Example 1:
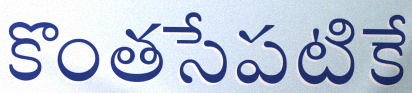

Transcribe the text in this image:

కొంతసేపటికే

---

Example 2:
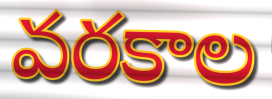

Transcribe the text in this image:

వరకాల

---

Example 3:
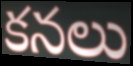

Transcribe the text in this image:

కనలు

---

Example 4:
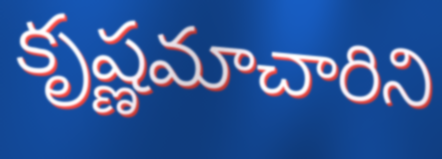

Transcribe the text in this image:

కృష్ణమాచారిని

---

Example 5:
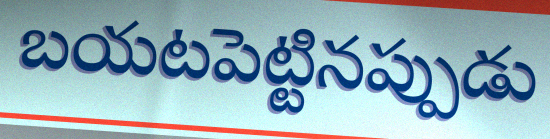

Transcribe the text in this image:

బయటపెట్టినప్పుడు